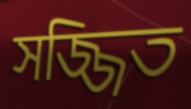
সজ্জিত